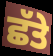
ਛੱਤੇ